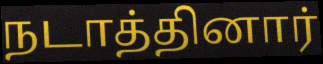
நடாத்தினார்